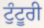
ਟੁੰਟੂਰੀ